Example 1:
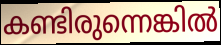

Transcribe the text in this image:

കണ്ടിരുന്നെങ്കിൽ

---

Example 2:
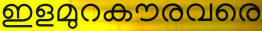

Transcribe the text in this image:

ഇളമുറകൗരവരെ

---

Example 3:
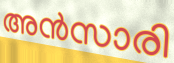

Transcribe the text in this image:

അൻസാരി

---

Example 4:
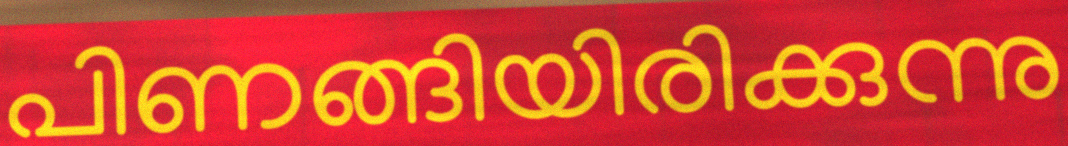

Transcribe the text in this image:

പിണങ്ങിയിരിക്കുന്നു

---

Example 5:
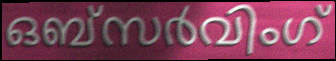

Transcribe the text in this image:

ഒബ്സർവിംഗ്